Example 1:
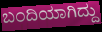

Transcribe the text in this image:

ಬಂದಿಯಾಗಿದ್ದು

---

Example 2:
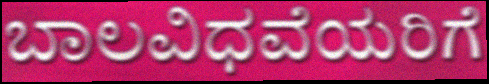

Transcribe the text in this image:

ಬಾಲವಿಧವೆಯರಿಗೆ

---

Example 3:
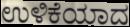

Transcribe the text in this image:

ಉಳಿಕೆಯಾದ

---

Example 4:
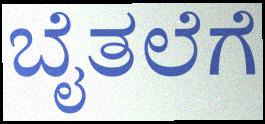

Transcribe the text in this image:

ಬೈತಲೆಗೆ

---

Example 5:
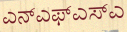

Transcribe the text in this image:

ಎನ್ಎಫ್ಎಸ್ಎ